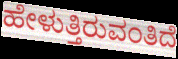
ಹೇಳುತ್ತಿರುವಂತಿದೆ